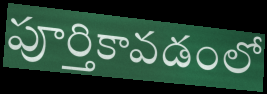
పూర్తికావడంలో